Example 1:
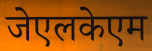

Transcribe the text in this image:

जेएलकेएम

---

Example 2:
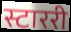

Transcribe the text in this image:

स्टाररी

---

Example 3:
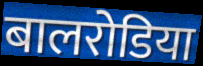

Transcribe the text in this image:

बालरोडिया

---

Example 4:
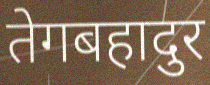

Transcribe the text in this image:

तेगबहादुर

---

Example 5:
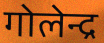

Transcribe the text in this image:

गोलेन्द्र